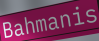
Bahmanis